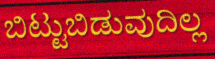
ಬಿಟ್ಟುಬಿಡುವುದಿಲ್ಲ